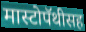
मास्टोपॅथीसह